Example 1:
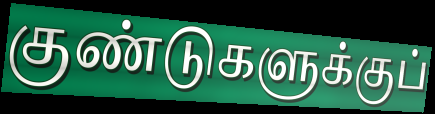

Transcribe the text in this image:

குண்டுகளுக்குப்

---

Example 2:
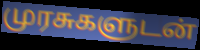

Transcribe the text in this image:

முரசுகளுடன்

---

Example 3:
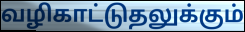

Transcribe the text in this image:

வழிகாட்டுதலுக்கும்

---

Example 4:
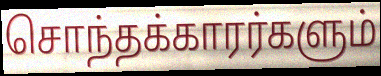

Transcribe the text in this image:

சொந்தக்காரர்களும்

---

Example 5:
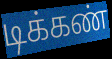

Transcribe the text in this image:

டிக்கண்